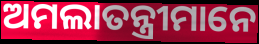
ଅମଲାତନ୍ତ୍ରୀମାନେ